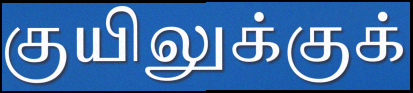
குயிலுக்குக்